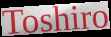
Toshiro